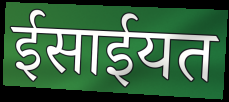
ईसाईयत